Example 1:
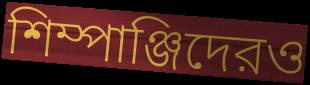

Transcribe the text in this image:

শিম্পাঞ্জিদেরও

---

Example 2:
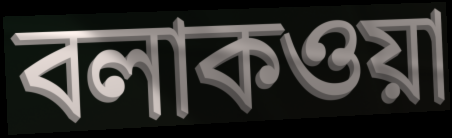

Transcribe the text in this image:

বলাকওয়া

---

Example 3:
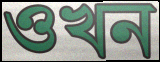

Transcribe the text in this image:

ওখন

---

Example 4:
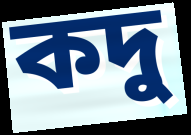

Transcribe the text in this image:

কদু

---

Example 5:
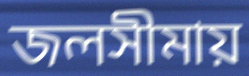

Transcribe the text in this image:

জলসীমায়